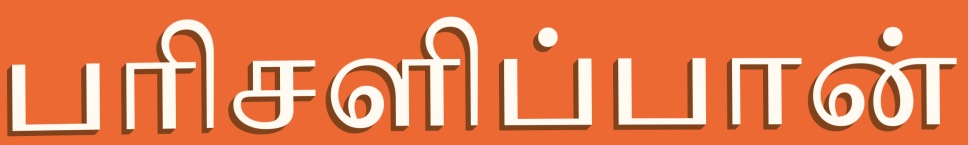
பரிசளிப்பான்